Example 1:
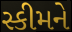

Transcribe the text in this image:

સ્કીમને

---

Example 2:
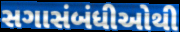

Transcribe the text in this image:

સગાસંબંધીઓથી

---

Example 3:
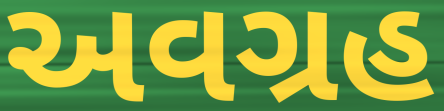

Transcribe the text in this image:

અવગ્રહ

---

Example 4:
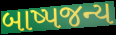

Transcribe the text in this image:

બાષ્પજન્ય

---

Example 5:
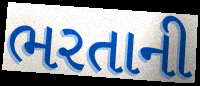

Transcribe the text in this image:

ભરતાની